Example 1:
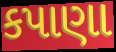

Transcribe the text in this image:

કપાણા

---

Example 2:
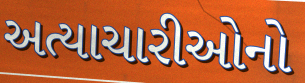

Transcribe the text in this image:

અત્યાચારીઓનો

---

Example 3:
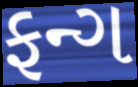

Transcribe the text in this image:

ફન્ગ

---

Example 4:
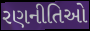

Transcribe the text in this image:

રણનીતિઓ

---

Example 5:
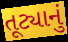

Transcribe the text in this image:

તૂટ્યાનું